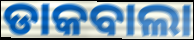
ଡାକବାଲା